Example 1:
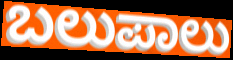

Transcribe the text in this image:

ಬಲುಪಾಲು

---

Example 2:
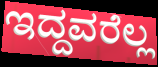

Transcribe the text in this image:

ಇದ್ದವರೆಲ್ಲ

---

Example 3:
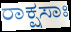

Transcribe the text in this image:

ರಾಕ್ಷಸಾಃ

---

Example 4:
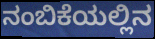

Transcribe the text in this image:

ನಂಬಿಕೆಯಲ್ಲಿನ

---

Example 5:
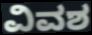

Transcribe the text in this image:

ವಿವಶ